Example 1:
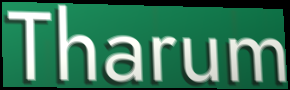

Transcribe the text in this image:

Tharum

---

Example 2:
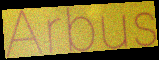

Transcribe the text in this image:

Arbus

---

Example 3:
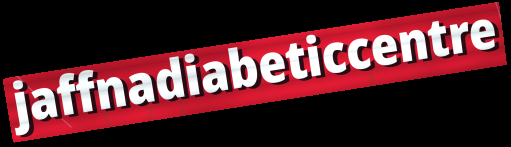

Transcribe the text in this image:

jaffnadiabeticcentre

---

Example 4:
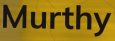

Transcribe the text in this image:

Murthy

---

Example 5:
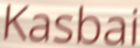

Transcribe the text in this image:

Kasbai